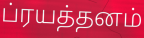
ப்ரயத்தனம்